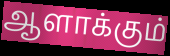
ஆளாக்கும்